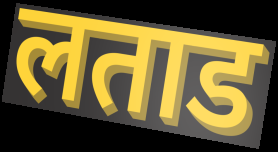
लताड